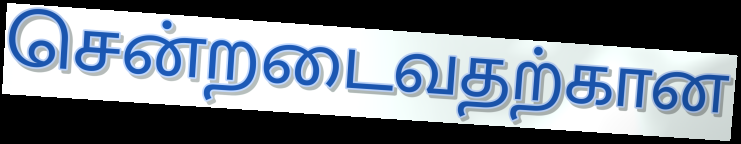
சென்றடைவதற்கான